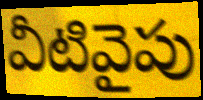
వీటివైపు